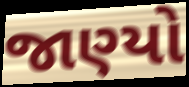
જાણ્યો